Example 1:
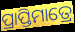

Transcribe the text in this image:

ପ୍ରାପ୍ତିମାତ୍ରେ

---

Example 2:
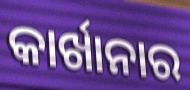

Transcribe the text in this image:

କାର୍ଖାନାର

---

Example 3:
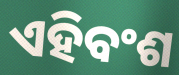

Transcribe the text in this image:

ଏହିବଂଶ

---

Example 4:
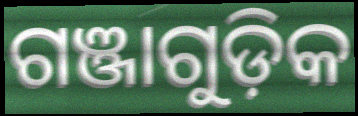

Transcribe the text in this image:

ଗଞ୍ଜାଗୁଡ଼ିକ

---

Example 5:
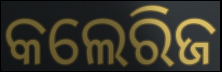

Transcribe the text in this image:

କଲେରିଜ